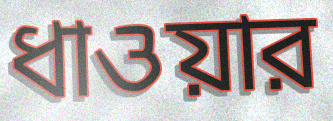
ধাওয়ার